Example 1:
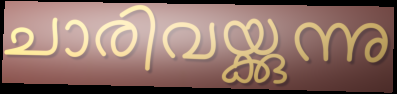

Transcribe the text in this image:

ചാരിവയ്ക്കുന്നു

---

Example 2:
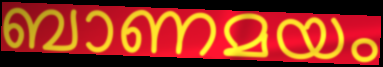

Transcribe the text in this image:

ബാണമയം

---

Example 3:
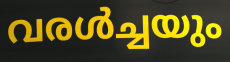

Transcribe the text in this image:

വരൾച്ചയും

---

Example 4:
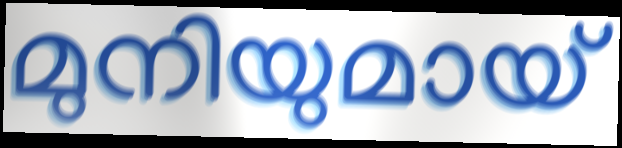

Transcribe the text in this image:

മുനിയുമായ്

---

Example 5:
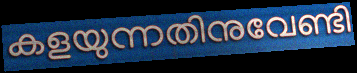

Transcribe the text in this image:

കളയുന്നതിനുവേണ്ടി